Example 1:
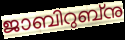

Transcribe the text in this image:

ജാബിറുബ്നു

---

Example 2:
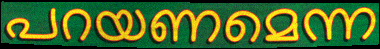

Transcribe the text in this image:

പറയണമെന്ന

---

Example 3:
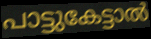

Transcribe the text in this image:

പാട്ടുകേട്ടാൽ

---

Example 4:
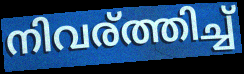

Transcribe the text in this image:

നിവര്ത്തിച്ച്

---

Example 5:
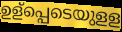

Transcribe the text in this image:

ഉള്പ്പെടെയുളള